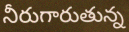
నీరుగారుతున్న